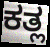
ಕತ್ಲ